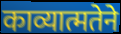
काव्यात्मतेने